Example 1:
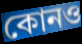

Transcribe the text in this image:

কোনও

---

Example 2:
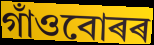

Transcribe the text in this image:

গাঁওবোৰৰ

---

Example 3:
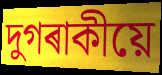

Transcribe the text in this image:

দুগৰাকীয়ে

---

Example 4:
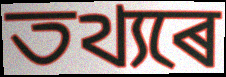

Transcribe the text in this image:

তথ্যৰে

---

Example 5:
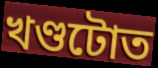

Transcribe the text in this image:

খণ্ডটোত